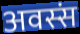
अवस्सं